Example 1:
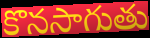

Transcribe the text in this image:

కొనసాగుతు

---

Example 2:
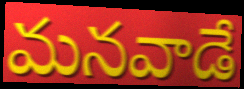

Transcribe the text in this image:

మనవాడే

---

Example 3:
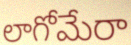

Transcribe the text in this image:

లాగోమేరా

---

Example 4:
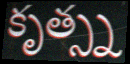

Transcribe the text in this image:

కృత్స్న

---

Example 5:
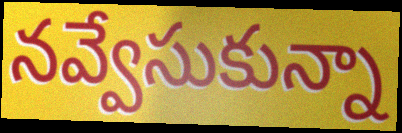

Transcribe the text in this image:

నవ్వేసుకున్నా